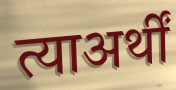
त्याअर्थीं